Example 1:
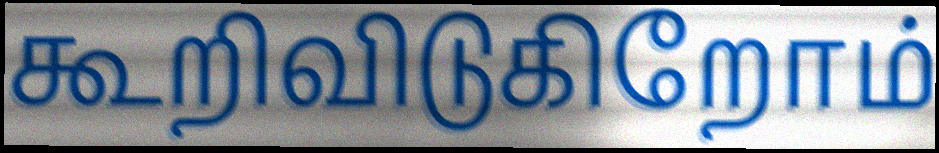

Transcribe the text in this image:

கூறிவிடுகிறோம்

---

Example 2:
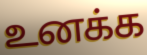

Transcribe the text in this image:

உனக்க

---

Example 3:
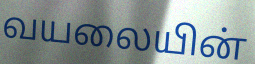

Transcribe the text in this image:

வயலையின்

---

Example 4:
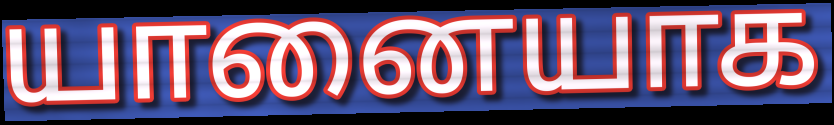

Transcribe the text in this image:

யானையாக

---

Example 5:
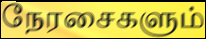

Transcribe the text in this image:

நேரசைகளும்